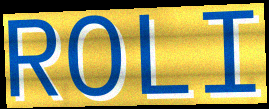
ROLI